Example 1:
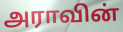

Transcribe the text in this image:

அராவின்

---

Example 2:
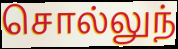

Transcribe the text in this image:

சொல்லுந்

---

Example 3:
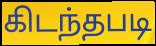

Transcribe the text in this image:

கிடந்தபடி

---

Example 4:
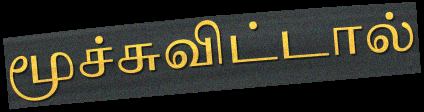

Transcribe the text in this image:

மூச்சுவிட்டால்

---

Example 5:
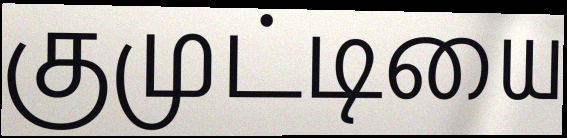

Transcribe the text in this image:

குமுட்டியை